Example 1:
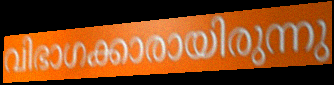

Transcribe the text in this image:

വിഭാഗക്കാരായിരുന്നു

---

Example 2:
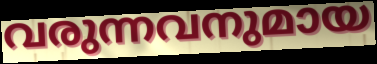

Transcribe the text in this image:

വരുന്നവനുമായ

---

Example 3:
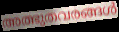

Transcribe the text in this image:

അത്ഭുതവരങ്ങൾ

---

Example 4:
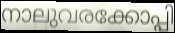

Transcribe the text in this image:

നാലുവരക്കോപ്പി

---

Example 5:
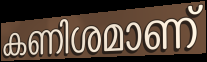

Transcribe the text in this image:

കണിശമാണ്